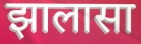
झालासा